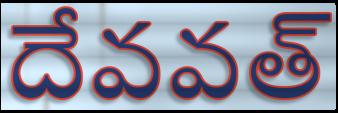
దేవవత్